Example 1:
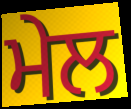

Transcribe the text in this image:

ਮੇਲ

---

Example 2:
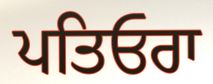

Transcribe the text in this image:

ਪਤਿਓਰਾ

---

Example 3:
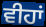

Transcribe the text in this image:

ਵੀਹਾਂ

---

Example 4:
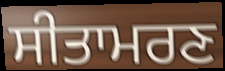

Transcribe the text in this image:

ਸੀਤਾਮਰਣ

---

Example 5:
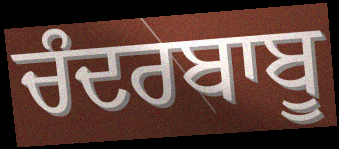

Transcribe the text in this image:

ਚੰਦਰਬਾਬੂ